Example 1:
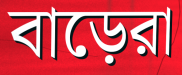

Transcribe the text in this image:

বাড়েরা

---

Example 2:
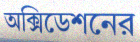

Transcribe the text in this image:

অক্সিডেশনের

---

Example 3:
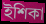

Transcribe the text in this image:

ইশিকা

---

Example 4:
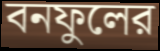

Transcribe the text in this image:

বনফুলের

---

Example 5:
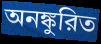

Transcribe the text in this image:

অনঙ্কুরিত